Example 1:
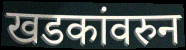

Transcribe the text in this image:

खडकांवरुन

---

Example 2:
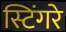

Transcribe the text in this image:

स्टिंगरे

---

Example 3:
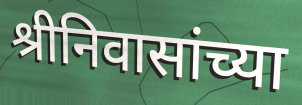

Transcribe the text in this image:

श्रीनिवासांच्या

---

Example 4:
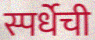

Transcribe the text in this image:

स्पर्धेची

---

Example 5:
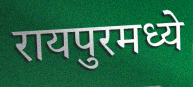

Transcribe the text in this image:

रायपुरमध्ये